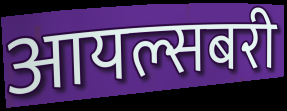
आयल्सबरी